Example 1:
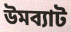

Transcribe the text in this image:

উমব্যাট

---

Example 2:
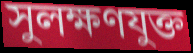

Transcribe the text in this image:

সুলক্ষণযুক্ত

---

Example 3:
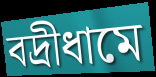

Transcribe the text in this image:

বদ্রীধামে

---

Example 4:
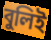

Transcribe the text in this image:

বুলিই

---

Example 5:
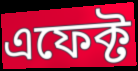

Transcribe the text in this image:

এফেক্ট